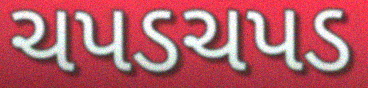
ચપડચપડ